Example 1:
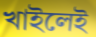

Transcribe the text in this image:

খাইলেই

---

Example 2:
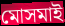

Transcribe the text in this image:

মোসমাই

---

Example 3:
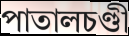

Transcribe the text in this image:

পাতালচণ্ডী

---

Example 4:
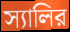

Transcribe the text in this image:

স্যালির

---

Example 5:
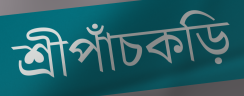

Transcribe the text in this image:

শ্রীপাঁচকড়ি